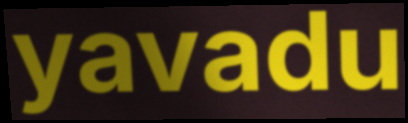
yavadu